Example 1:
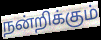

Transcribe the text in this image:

நன்றிக்கும்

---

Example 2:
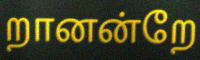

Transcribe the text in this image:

றானன்றே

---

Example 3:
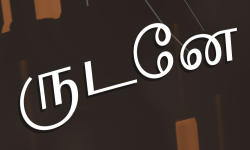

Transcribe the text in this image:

ருடனே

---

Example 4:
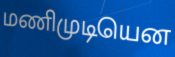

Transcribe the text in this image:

மணிமுடியென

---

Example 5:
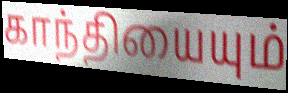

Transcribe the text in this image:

காந்தியையும்